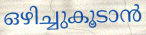
ഒഴിച്ചുകൂടാൻ